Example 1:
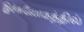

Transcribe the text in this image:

இச்சுலோகத்தில்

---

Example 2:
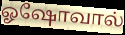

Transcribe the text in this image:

ஓஷோவால்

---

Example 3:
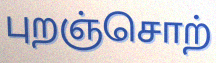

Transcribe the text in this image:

புறஞ்சொற்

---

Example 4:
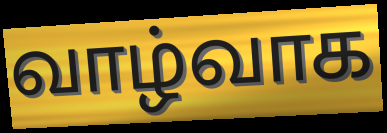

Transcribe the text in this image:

வாழ்வாக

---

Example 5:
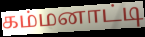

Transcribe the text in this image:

கம்மனாட்டி